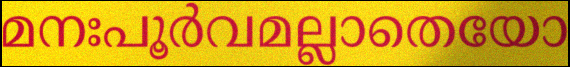
മനഃപൂർവമല്ലാതെയോ